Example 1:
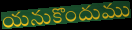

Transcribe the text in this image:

యనుకొందుము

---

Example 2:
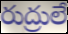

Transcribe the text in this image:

రుద్రులే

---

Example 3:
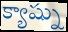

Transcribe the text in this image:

క్యాష్ను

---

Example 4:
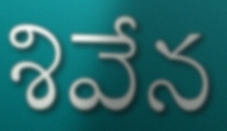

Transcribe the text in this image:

శివేన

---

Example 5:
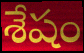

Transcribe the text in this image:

శేషం